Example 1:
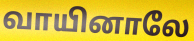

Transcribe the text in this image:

வாயினாலே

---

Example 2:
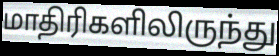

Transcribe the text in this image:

மாதிரிகளிலிருந்து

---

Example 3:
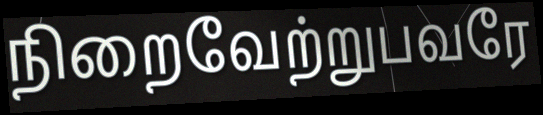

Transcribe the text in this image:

நிறைவேற்றுபவரே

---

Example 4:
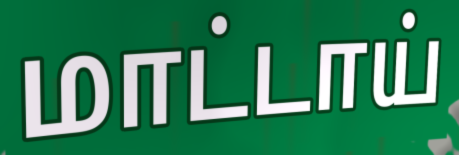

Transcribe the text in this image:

மாட்டாய்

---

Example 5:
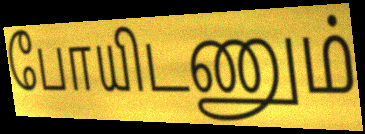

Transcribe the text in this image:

போயிடணும்